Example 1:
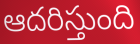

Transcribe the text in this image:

ఆదరిస్తుంది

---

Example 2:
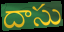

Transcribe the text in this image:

దాసు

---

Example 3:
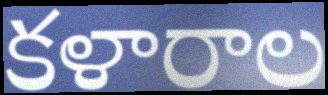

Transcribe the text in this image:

కళారాల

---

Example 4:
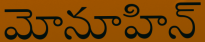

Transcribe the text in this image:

మోనూహిన్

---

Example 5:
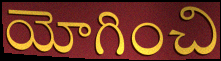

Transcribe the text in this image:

యోగించి